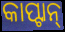
କାପ୍ଟାନ୍